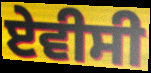
ਏਵੀਸੀ